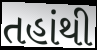
તહાંથી